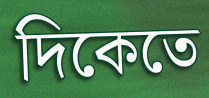
দিকেতে